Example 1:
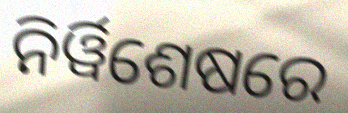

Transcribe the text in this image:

ନିର୍ୱିଶେଷରେ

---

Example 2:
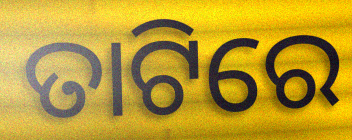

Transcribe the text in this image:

ତାଟିରେ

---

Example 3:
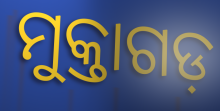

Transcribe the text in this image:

ମୁକ୍ତାଗଡ଼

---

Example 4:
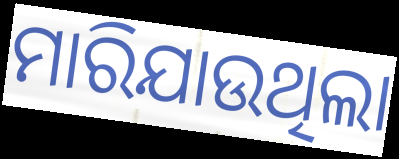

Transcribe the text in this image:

ମାରିଯାଉଥିଲା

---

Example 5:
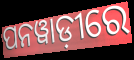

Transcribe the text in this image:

ପନୱାଡ଼ୀରେ